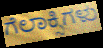
ಗೆಲಾಕ್ಸಿಗಳು